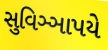
સુવિઞ્ઞાપયે